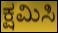
ಕ್ಷಮಿಸಿ